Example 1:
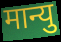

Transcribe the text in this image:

मान्यु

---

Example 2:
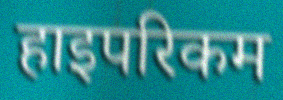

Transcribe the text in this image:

हाइपरिकम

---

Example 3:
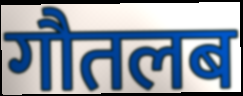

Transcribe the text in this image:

गौतलब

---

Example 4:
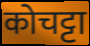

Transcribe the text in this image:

कोचट्टा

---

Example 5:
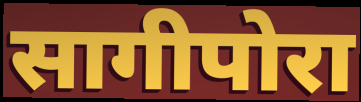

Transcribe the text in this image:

सागीपोरा